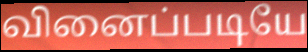
வினைப்படியே